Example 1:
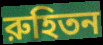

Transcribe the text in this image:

রুহিতন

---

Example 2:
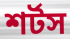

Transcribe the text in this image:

শর্টস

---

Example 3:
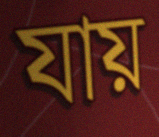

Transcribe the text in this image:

যায়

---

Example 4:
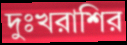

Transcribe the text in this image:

দুঃখরাশির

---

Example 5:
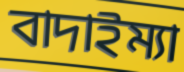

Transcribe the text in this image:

বাদাইম্যা